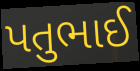
પતુભાઈ